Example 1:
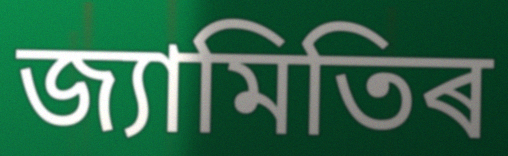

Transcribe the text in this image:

জ্যামিতিৰ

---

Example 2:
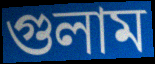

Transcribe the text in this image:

গুলাম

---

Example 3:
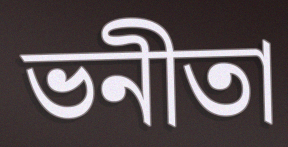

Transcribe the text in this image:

ভনীতা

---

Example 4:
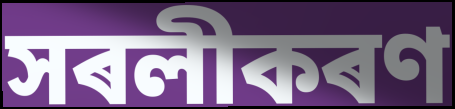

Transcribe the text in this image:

সৰলীকৰণ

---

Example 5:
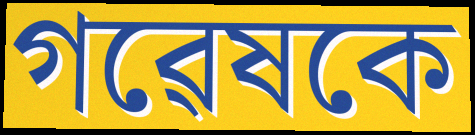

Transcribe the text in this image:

গৱেষকে